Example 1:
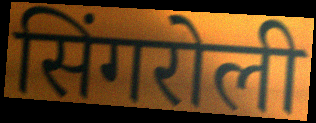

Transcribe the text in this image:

सिंगरोली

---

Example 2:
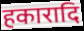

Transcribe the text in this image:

हकारादि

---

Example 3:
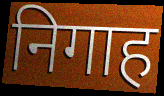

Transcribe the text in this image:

निगाह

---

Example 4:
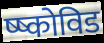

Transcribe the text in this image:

ष्ष्कोविड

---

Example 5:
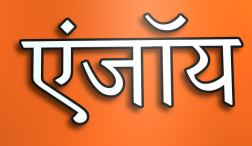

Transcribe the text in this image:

एंजॉय